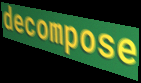
decompose